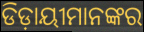
ଡିଡ଼ାୟୀମାନଙ୍କର